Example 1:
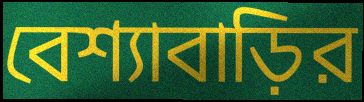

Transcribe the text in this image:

বেশ্যাবাড়ির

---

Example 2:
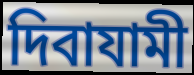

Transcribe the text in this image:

দিবাযামী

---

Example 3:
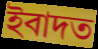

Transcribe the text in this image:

ইবাদত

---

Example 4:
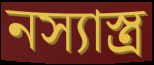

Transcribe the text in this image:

নস্যাস্ত্র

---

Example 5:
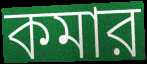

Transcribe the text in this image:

কমার